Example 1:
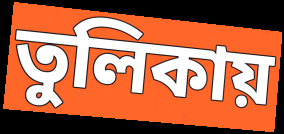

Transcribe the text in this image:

তুলিকায়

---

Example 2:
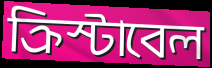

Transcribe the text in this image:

ক্রিস্টাবেল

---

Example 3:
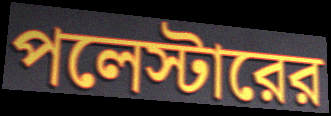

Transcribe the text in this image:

পলেস্টারের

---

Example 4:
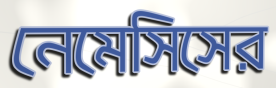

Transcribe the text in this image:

নেমেসিসের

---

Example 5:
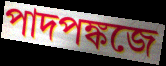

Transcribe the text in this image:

পাদপঙ্কজে